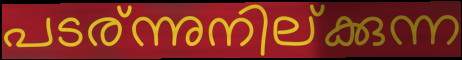
പടര്ന്നുനില്ക്കുന്ന